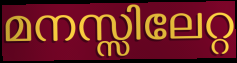
മനസ്സിലേറ്റ